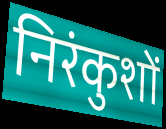
निरंकुशों